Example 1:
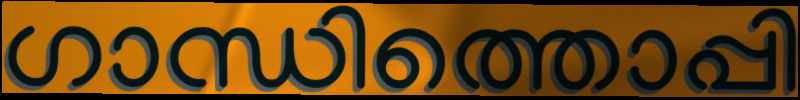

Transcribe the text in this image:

ഗാന്ധിത്തൊപ്പി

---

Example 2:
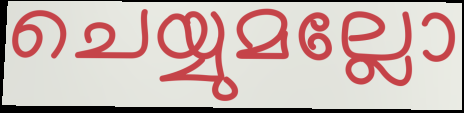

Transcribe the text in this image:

ചെയ്യുമല്ലോ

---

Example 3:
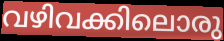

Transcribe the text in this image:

വഴിവക്കിലൊരു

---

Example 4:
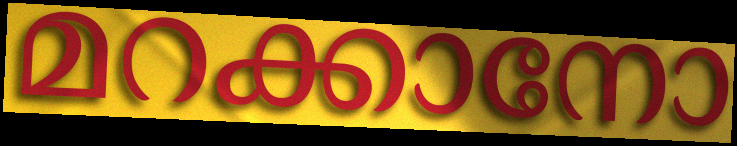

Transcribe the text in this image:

മറക്കാനോ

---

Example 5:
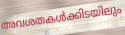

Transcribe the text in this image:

അവശതകൾക്കിടയിലും